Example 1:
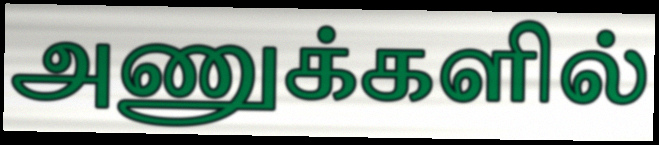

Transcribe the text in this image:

அணுக்களில்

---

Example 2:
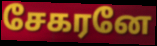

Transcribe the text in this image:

சேகரனே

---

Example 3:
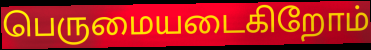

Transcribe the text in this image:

பெருமையடைகிறோம்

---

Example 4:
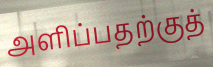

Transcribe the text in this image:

அளிப்பதற்குத்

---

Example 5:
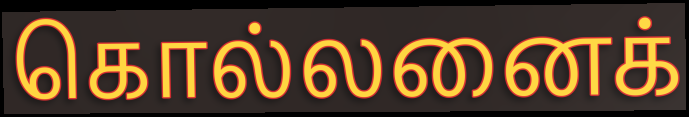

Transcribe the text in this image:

கொல்லனைக்